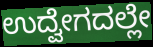
ಉದ್ವೇಗದಲ್ಲೇ